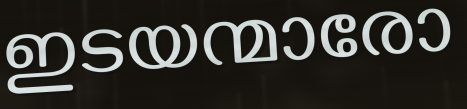
ഇടയന്മാരോ